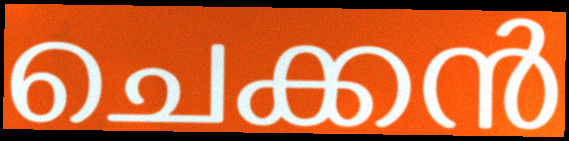
ചെക്കൻ